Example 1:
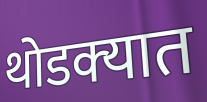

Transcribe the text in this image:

थोडक्‍यात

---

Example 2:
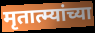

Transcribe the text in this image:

मृतात्म्यांच्या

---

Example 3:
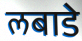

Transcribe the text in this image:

लबाडे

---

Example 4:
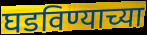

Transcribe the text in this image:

घडविण्याच्या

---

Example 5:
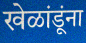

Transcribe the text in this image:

खेळांडूंना